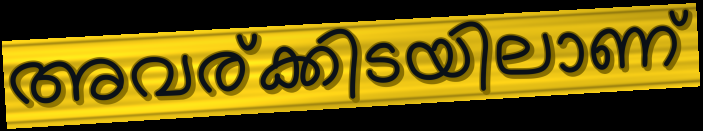
അവര്ക്കിടയിലാണ്